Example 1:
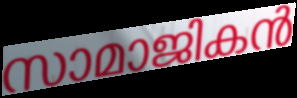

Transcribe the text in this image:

സാമാജികൻ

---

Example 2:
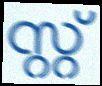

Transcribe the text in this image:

സ്റ്റ്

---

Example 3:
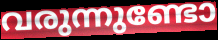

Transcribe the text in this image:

വരുന്നുണ്ടോ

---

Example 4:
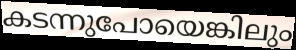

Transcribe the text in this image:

കടന്നുപോയെങ്കിലും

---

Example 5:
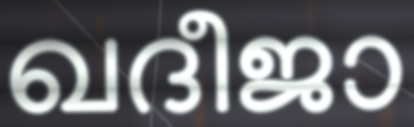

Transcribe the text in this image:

ഖദീജാ